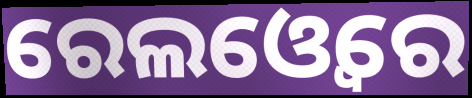
ରେଲଓ୍ୱେରେ